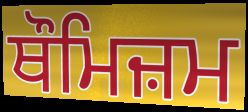
ਥੌਮਿਜ਼ਮ